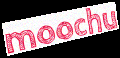
moochu